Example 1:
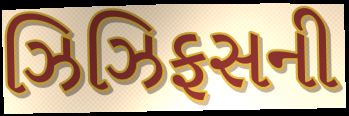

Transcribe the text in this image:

ઝિઝિફસની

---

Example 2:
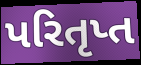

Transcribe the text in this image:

પરિતૃપ્ત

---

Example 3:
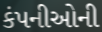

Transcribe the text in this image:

કંપનીઓની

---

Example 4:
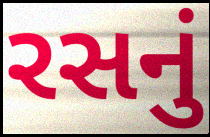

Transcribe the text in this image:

રસનું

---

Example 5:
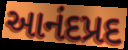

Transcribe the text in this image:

આનંદપ્રદ